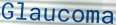
Glaucoma